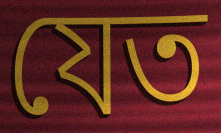
যেত